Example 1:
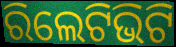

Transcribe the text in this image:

ରିଲେଟିଭିଟି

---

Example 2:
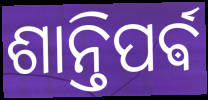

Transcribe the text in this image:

ଶାନ୍ତିପର୍ଵ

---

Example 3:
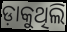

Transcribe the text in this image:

ଡ଼ାକୁଥିଲି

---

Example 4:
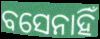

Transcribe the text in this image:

ବସେନାହିଁ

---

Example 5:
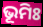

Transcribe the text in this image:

ଭୂମିଃ